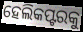
ହେଲିକପ୍ଟରକୁ